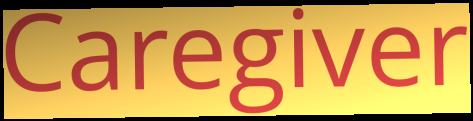
Caregiver